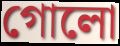
গোলো